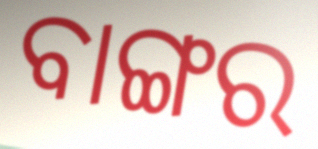
ବାଙ୍ଗର